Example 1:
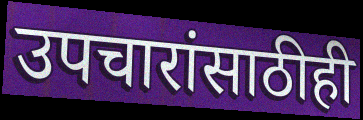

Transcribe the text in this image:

उपचारांसाठीही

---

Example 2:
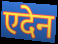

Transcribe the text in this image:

एदेन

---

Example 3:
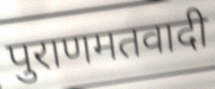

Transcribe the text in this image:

पुराणमतवादी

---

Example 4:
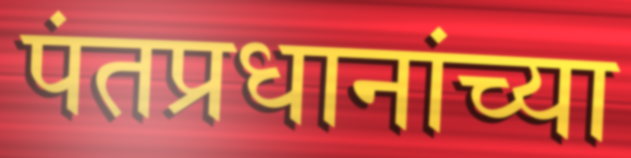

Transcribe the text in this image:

पंतप्रधानांच्या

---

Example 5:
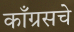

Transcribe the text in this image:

काँग्रसचे